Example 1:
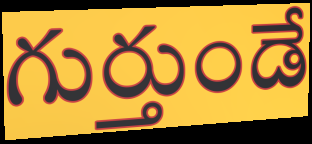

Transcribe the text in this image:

గుర్తుండే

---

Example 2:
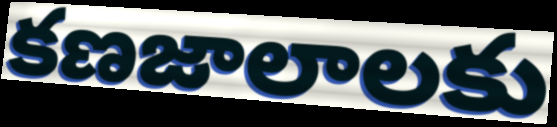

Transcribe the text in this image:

కణజాలాలకు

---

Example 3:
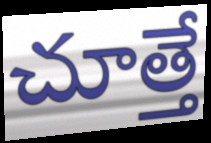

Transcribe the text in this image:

చూత్తే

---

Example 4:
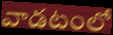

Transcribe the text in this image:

వాడటంలో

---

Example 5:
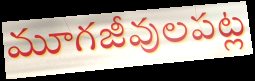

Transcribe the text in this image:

మూగజీవులపట్ల